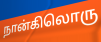
நான்கிலொரு